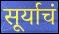
सूर्याचं